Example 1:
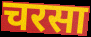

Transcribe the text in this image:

चरसा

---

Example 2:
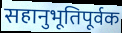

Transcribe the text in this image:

सहानुभूतिपूर्वक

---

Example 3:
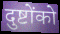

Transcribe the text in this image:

दुष्टोंको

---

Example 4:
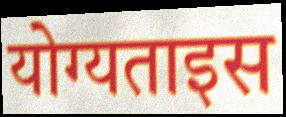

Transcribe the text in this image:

योग्यताइस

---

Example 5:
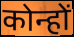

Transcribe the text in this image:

कोन्हों